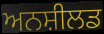
ਅਨਸ਼ੀਲਡ